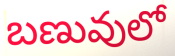
బణువులో